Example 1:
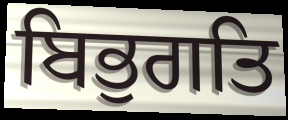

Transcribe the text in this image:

ਬਿਭੁਗਤਿ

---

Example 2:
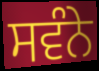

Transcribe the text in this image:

ਸਵੰਨੇ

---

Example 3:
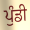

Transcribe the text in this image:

ਪੁੰਡੀ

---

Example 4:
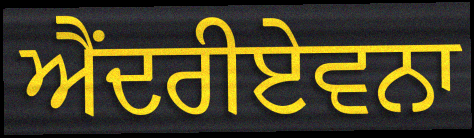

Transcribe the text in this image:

ਐਂਦਰੀਏਵਨਾ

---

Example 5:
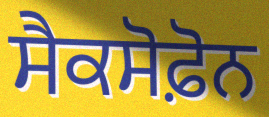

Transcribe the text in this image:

ਸੈਕਸੋਫ਼ੋਨ